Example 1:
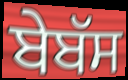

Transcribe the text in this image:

ਬੇਬੱਸ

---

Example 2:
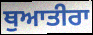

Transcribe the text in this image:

ਥੁਆਤੀਰਾ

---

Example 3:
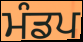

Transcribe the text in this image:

ਮੰਡਪ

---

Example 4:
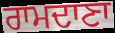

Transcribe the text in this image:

ਰਾਮਦਾਣਾ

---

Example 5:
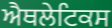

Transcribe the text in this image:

ਐਥਲੇਟਿਕਸ